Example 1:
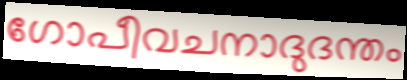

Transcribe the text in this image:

ഗോപീവചനാദുദന്തം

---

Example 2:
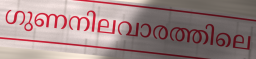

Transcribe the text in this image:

ഗുണനിലവാരത്തിലെ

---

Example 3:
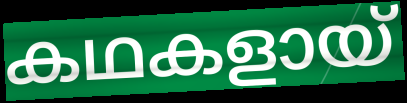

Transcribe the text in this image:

കഥകളായ്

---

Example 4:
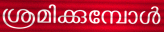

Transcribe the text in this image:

ശ്രമിക്കുമ്പോൾ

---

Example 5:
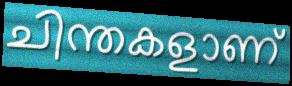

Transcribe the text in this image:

ചിന്തകളാണ്